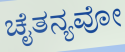
ಚೈತನ್ಯವೋ